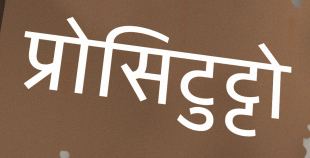
प्रोसिटुट्टो